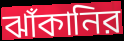
ঝাঁকানির